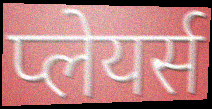
प्लेयर्स